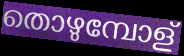
തൊഴുമ്പോള്